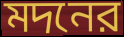
মদনের